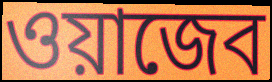
ওয়াজেব